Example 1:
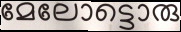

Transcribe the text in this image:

മേലോട്ടൊരു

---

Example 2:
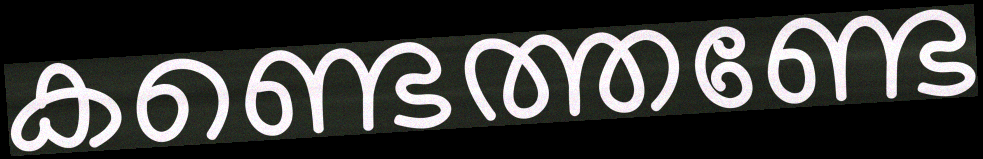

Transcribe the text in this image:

കണ്ടെത്തണ്ടേ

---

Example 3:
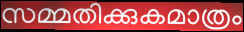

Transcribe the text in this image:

സമ്മതിക്കുകമാത്രം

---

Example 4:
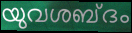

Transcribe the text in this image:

യുവശബ്ദം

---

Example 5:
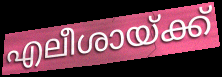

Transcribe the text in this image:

എലീശായ്ക്ക്